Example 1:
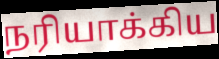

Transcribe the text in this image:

நரியாக்கிய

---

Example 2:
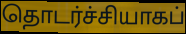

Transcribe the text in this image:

தொடர்ச்சியாகப்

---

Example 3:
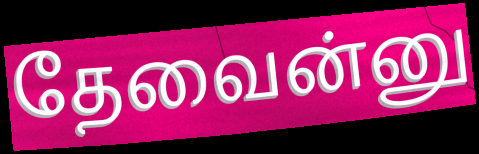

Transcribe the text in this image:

தேவைன்னு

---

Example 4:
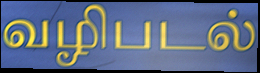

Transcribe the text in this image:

வழிபடல்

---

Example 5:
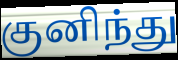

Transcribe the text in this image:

குனிந்து